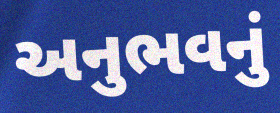
અનુભવનું